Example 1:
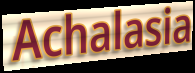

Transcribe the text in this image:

Achalasia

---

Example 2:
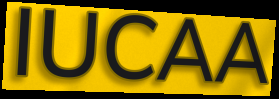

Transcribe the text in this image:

IUCAA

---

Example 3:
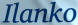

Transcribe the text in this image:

Ilanko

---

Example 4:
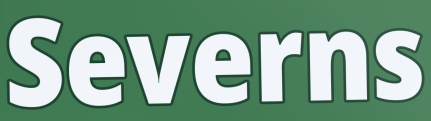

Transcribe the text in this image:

Severns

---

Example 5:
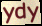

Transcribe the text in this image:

ydy